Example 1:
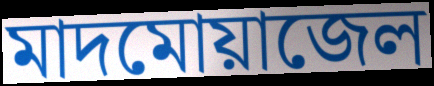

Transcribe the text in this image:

মাদমোয়াজেল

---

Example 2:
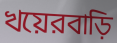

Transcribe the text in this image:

খয়েরবাড়ি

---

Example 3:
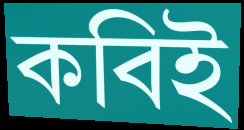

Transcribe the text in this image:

কবিই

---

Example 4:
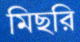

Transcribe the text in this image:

মিছরি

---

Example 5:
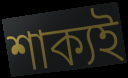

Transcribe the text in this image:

শাক্যই